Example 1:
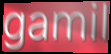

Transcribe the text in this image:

gamil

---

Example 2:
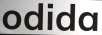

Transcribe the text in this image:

odida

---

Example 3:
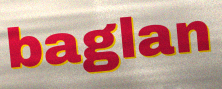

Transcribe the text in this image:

baglan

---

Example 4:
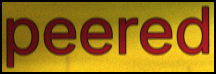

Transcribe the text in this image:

peered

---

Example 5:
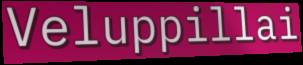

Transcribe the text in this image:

Veluppillai